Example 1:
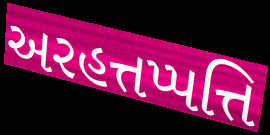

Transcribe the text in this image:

અરહત્તપ્પત્તિ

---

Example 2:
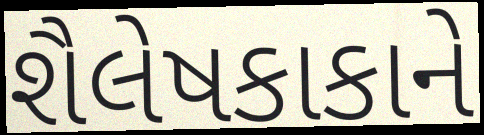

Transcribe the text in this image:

શૈલેષકાકાને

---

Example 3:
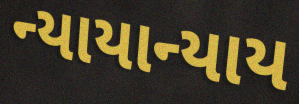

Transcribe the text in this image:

ન્યાયાન્યાય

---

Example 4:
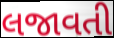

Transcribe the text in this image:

લજાવતી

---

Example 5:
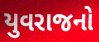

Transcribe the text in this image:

યુવરાજનો